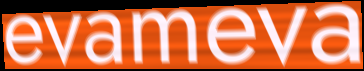
evameva